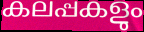
കലപ്പകളും